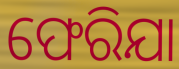
ଫେରିଯା